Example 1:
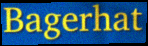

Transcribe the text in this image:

Bagerhat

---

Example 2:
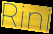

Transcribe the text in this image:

Rini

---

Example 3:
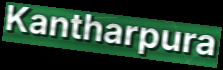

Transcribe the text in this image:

Kantharpura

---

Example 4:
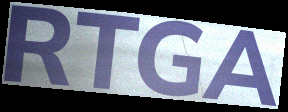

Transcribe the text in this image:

RTGA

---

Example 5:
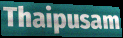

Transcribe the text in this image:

Thaipusam